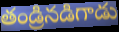
తండ్రినడిగాడు